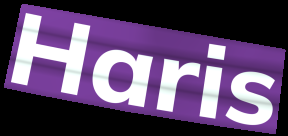
Haris